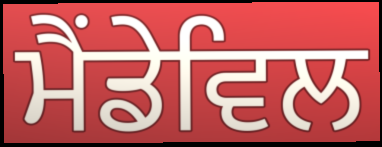
ਮੈਂਡੇਵਿਲ